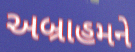
અબ્રાહમને